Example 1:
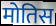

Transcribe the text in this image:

मोतिस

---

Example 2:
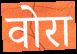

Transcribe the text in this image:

वोरा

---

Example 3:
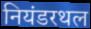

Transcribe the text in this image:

नियंडरथल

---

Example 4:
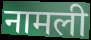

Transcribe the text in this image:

नामली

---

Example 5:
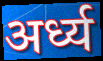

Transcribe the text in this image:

अर्ध्य